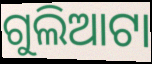
ଗୁଲିଆଟା